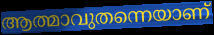
ആത്മാവുതന്നെയാണ്